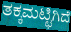
ತಕ್ಕಮಟ್ಟಿಗಿದೆ